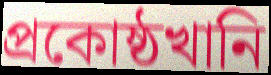
প্রকোষ্ঠখানি